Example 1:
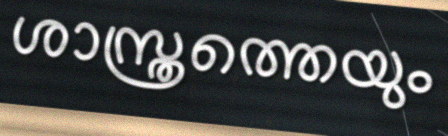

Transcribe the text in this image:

ശാസ്ത്രത്തെയും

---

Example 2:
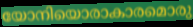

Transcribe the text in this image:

യോനിയൊരാകാരമൊരു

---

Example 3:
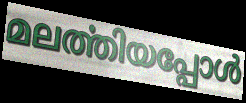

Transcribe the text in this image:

മലൎത്തിയപ്പോൾ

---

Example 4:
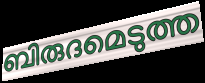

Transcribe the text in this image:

ബിരുദമെടുത്ത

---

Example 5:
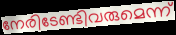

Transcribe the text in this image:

നേരിടേണ്ടിവരുമെന്ന്